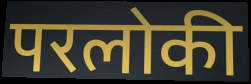
परलोकी